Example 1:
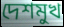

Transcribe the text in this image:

দেশমুখ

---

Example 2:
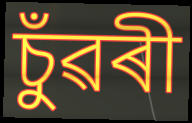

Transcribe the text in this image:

চুঁৱৰী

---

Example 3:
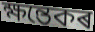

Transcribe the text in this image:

ক্ষন্তেকৰ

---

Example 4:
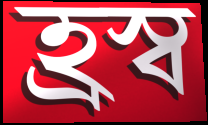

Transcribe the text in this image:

হ্ৰস্ব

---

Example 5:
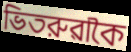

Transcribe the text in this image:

ভিতৰুৱাকৈ